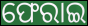
ଫେରାଇ